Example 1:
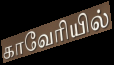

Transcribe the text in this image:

காவேரியில்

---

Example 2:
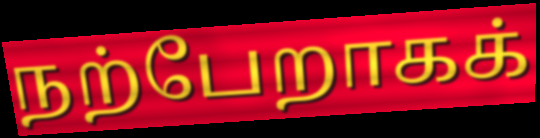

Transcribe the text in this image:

நற்பேறாகக்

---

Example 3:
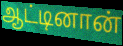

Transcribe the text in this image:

ஆட்டினான்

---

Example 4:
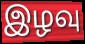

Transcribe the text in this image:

இழவு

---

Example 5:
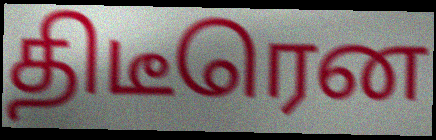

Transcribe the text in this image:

திடீரென